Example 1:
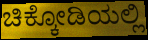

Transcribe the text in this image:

ಚಿಕ್ಕೋಡಿಯಲ್ಲಿ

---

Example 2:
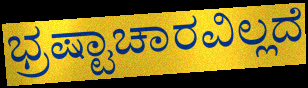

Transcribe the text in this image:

ಭ್ರಷ್ಟಾಚಾರವಿಲ್ಲದೆ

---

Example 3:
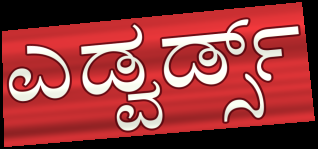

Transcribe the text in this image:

ಎಡ್ವರ್ಡ್ಸ್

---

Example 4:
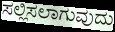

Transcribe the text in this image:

ಸಲ್ಲಿಸಲಾಗುವುದು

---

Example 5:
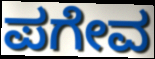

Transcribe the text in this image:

ಪಗೇವ